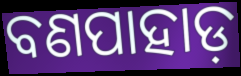
ବଣପାହାଡ଼